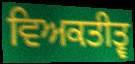
ਵਿਅਕਤੀਤ੍ਵ